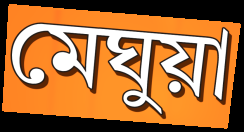
মেঘুয়া